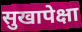
सुखापेक्षा